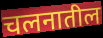
चलनातील